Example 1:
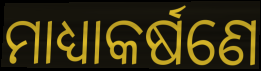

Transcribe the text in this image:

ମାଧ୍ୟାକର୍ଷଣେ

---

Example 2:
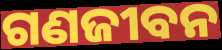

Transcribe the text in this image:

ଗଣଜୀବନ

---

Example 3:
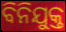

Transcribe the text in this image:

ବିନିଯୁକ୍ତ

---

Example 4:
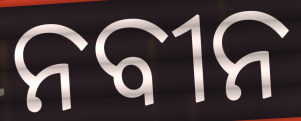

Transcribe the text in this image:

ନବୀନ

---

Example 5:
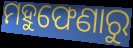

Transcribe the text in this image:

ମହୁଫେଣାରୁ